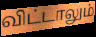
விட்டாலும்